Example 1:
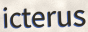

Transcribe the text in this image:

icterus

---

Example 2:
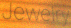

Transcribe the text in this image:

Jewelry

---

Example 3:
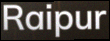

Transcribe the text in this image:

Raipur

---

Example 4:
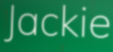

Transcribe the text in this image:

Jackie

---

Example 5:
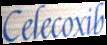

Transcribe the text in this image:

Celecoxib